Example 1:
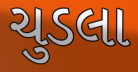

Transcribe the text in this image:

ચુડલા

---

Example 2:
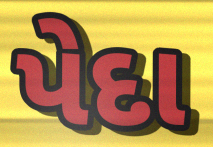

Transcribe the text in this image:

પેદા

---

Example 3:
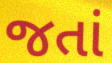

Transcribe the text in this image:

જતાં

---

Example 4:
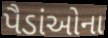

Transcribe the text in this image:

પૈડાંઓના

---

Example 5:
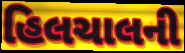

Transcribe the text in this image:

હિલચાલની